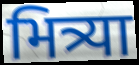
भित्र्या